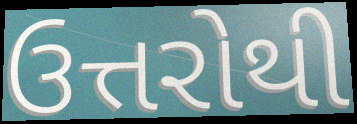
ઉત્તરોથી